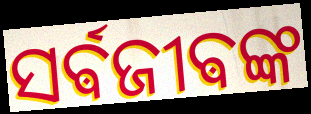
ସର୍ଵଜୀଵଙ୍କ